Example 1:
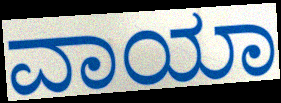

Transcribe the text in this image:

ವಾಯಾ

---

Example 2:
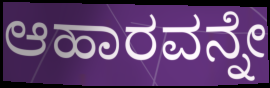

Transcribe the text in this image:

ಆಹಾರವನ್ನೇ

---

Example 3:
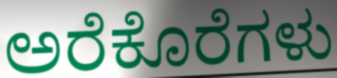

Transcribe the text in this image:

ಅರೆಕೊರೆಗಳು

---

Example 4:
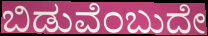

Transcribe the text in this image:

ಬಿಡುವೆಂಬುದೇ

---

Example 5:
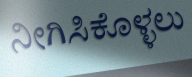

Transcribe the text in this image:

ನೀಗಿಸಿಕೊಳ್ಳಲು